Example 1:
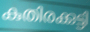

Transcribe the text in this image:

കുതിരക്കുട്ടി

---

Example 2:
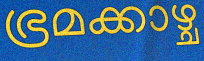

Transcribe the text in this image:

ഭ്രമക്കാഴ്ച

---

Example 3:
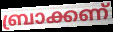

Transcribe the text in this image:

ബ്രാക്കണ്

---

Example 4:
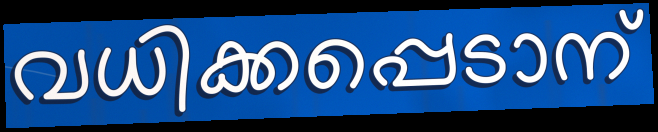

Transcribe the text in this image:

വധിക്കപ്പെടാന്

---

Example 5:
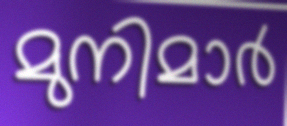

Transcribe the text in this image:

മുനിമാർ